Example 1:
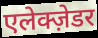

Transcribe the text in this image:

एलेक्ज़ेडर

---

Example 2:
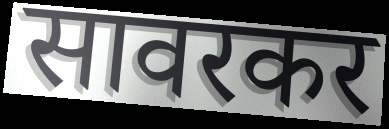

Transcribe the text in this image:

सावरकर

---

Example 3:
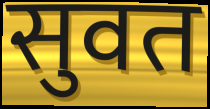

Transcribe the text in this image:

सुवत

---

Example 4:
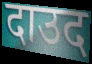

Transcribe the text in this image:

दाउद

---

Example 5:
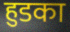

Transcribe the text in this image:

हुडका